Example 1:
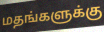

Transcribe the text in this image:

மதங்களுக்கு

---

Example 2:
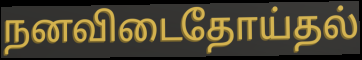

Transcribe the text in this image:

நனவிடைதோய்தல்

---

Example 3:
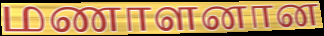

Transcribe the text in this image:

மணாளனான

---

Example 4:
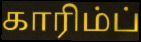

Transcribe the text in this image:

காரிம்ப்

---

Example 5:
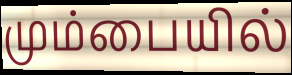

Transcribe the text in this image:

மும்பையில்